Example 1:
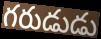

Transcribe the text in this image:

గరుడుడు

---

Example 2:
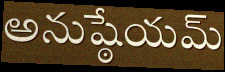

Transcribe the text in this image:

అనుష్ఠేయమ్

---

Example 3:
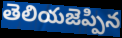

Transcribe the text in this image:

తెలియజెప్పిన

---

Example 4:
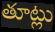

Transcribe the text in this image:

తూట్లు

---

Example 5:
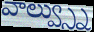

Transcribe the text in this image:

వాల్వ్స్ను